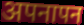
अपनापन